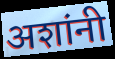
अशांनी